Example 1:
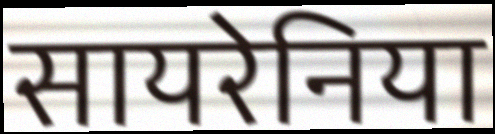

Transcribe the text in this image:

सायरेनिया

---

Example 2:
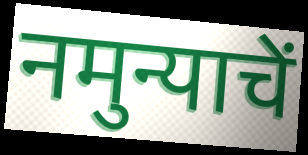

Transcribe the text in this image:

नमुन्याचें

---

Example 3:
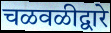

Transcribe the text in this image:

चळवळीद्वारे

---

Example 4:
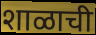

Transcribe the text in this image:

शाळाची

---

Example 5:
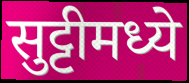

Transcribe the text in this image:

सुट्टीमध्ये